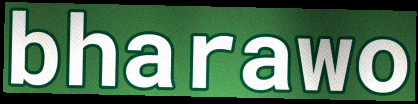
bharawo